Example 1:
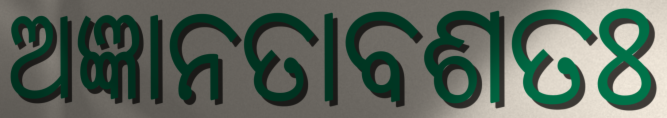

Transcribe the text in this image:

ଅଜ୍ଞାନତାବଶତଃ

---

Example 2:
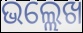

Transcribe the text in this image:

ଭଲ୍ଲେଖ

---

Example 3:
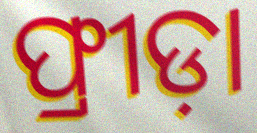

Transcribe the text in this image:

ଫ୍ରୀଡ଼ା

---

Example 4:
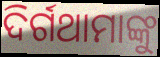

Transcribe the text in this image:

ଦିର୍ଗଥାମାଙ୍କୁ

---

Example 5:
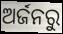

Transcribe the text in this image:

ଅର୍ଜନରୁ